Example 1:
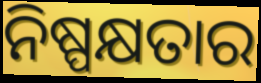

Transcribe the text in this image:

ନିଷ୍ପକ୍ଷତାର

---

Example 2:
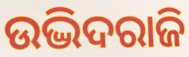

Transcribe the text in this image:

ଉଦ୍ଭିଦରାଜି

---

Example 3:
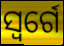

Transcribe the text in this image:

ସ୍ୱର୍ଗେ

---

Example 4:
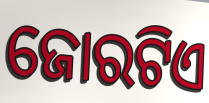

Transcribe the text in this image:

ଜୋରଟିଏ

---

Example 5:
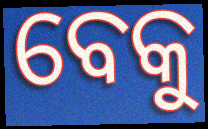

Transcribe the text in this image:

ବେକୁ